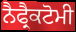
ਨੈਫ੍ਰੈਕਟੋਮੀ